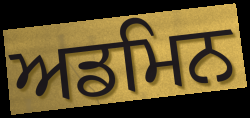
ਅਡਮਿਨ